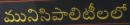
మునిసిపాలిటీలలో